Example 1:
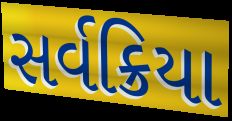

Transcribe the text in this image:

સર્વક્રિયા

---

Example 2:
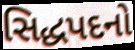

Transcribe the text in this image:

સિદ્ધપદનો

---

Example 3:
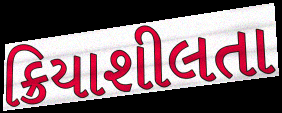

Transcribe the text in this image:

ક્રિયાશીલતા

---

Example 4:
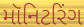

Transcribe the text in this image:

મૉનિટરિંગ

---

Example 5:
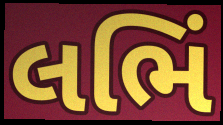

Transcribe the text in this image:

લભિં